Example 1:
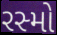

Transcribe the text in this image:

રસ્મો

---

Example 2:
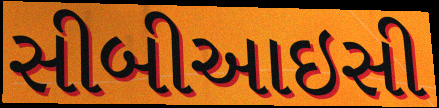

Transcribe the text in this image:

સીબીઆઇસી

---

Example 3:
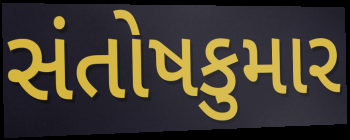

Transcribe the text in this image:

સંતોષકુમાર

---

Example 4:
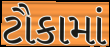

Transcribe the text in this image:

ટૌકામાં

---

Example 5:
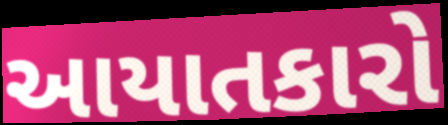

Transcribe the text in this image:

આયાતકારો